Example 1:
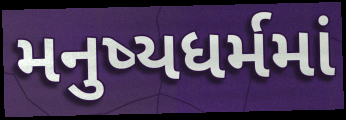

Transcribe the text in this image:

મનુષ્યધર્મમાં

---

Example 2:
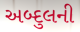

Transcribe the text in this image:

અબ્દુલની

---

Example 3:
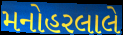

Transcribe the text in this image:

મનોહરલાલે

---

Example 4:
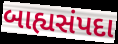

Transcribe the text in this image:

બાહ્યસંપદા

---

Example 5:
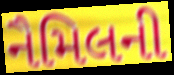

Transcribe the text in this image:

નૈમિલની